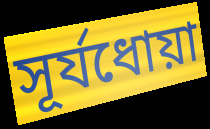
সূর্যধোয়া